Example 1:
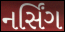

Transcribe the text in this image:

નર્સિંગ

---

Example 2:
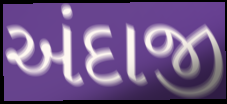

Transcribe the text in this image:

અંદાજી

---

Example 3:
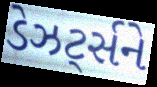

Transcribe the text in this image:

ડેઝર્ટ્સને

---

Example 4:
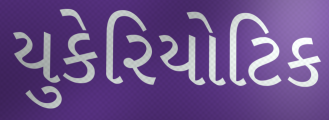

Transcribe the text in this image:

યુકેરિયોટિક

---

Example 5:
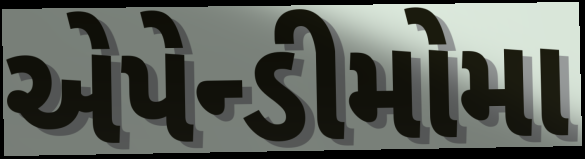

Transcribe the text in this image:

એપેન્ડીમોમા